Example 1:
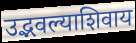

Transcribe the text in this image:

उद्भवल्याशिवाय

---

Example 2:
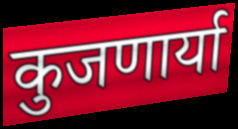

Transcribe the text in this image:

कुजणार्या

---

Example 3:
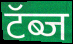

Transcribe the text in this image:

टॅब्ज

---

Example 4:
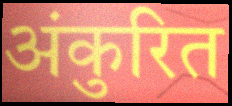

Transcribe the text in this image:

अंकुरित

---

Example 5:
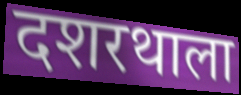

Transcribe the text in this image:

दशरथाला